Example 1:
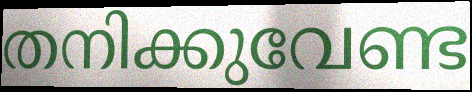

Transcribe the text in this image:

തനിക്കുവേണ്ട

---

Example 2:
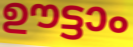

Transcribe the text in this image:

ഊട്ടാം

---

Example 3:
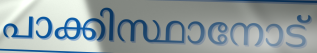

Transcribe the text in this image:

പാക്കിസ്ഥാനോട്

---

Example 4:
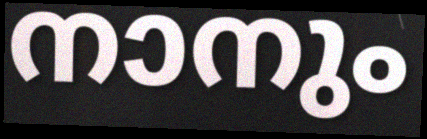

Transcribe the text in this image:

നാനും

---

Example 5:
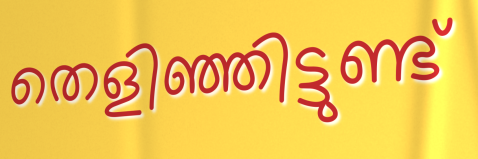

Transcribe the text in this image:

തെളിഞ്ഞിട്ടുണ്ട്